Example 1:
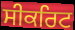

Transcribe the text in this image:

ਸੀਕਰਿਟ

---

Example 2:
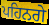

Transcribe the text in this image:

ਪਹਿਨਗੇ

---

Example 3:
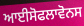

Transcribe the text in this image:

ਆਈਸੋਫਲਾਵੋਨਸ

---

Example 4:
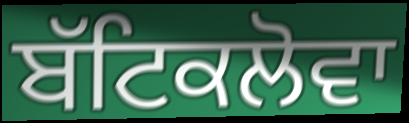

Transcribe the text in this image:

ਬੱਟਿਕਲੋਵਾ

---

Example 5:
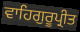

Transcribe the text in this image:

ਵਾਹਿਗੁਰੂਪ੍ਰੀਤ